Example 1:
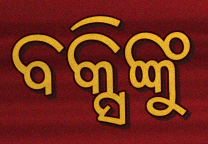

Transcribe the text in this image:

ବକ୍ସିଙ୍କୁ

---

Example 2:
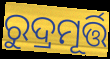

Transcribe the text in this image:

ରୁଦ୍ରମୂର୍ତ୍ତି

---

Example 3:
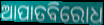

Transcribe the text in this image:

ଆପାତବିରୋଧ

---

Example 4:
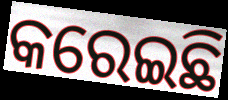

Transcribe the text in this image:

କରେଇଛି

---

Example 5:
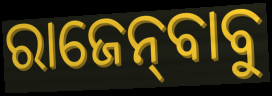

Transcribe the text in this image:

ରାଜେନ୍‌ବାବୁ